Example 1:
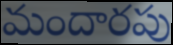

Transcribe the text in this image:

మందారపు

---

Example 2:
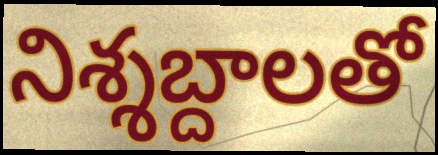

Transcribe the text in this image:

నిశ్శబ్దాలతో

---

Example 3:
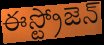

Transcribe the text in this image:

ఈస్ట్రోజెన్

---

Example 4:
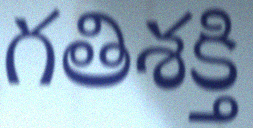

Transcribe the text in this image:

గతిశక్తి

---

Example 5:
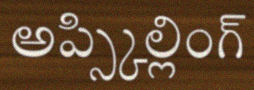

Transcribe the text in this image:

అప్స్కిల్లింగ్